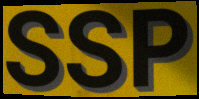
SSP